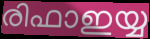
രിഫാഇയ്യ